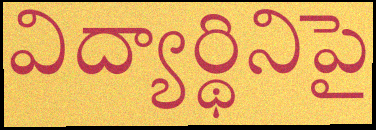
విద్యార్థినిపై